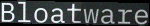
Bloatware